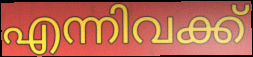
എന്നിവക്ക്